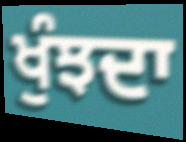
ਖੁੰਝਦਾ